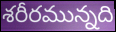
శరీరమున్నది